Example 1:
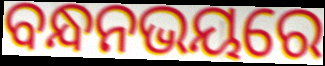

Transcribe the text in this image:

ବନ୍ଧନଭୟରେ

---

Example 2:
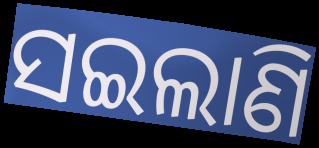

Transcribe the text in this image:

ସଇଲାଣି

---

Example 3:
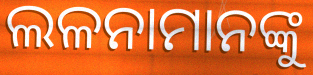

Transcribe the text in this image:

ଲଳନାମାନଙ୍କୁ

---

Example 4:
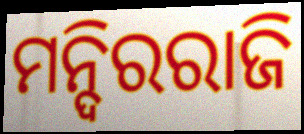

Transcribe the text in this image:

ମନ୍ଦିରରାଜି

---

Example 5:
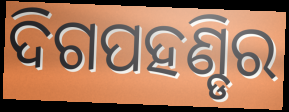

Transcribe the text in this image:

ଦିଗପହଣ୍ଡିର